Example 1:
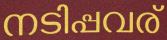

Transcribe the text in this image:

നടിപ്പവര്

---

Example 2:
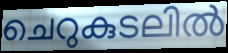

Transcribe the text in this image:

ചെറുകുടലിൽ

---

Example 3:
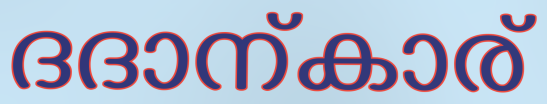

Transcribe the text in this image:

ദദാന്കാര്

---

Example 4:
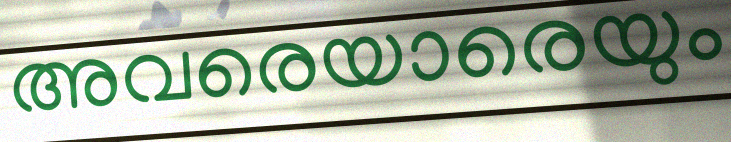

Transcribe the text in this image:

അവരെയാരെയും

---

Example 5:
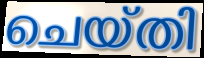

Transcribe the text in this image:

ചെയ്‌തി